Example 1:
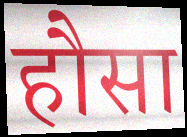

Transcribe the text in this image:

हौसा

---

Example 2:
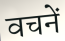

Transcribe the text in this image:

वचनें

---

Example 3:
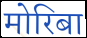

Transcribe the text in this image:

मोरिबा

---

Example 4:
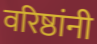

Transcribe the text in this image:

वरिष्ठांनी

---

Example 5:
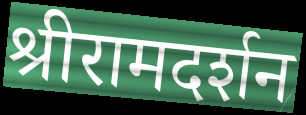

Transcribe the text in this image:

श्रीरामदर्शन